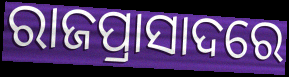
ରାଜପ୍ରାସାଦରେ